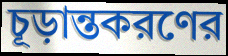
চূড়ান্তকরণের